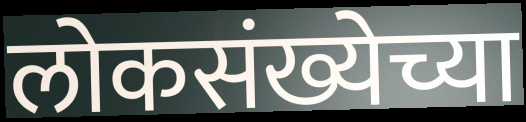
लोकसंख्‍येच्‍या